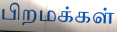
பிறமக்கள்